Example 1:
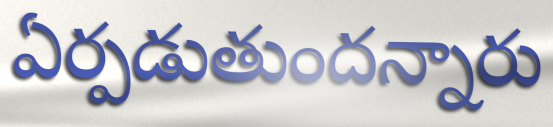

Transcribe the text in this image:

ఏర్పడుతుందన్నారు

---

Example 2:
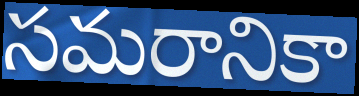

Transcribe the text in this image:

సమరానికా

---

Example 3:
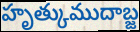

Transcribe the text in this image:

హృత్కుముదాబ్జ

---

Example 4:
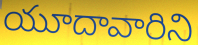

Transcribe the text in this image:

యూదావారిని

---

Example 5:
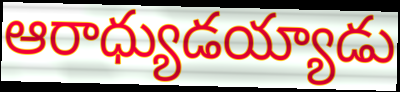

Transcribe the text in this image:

ఆరాధ్యుడయ్యాడు